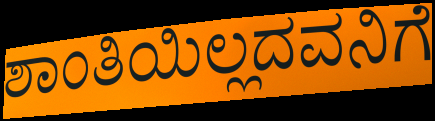
ಶಾಂತಿಯಿಲ್ಲದವನಿಗೆ